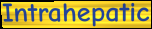
Intrahepatic